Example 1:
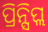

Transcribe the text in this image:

ପ୍ରିନ୍ସିପ୍ଲ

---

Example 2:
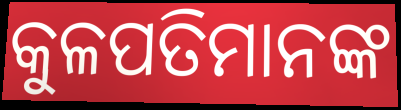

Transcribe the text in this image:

କୁଳପତିମାନଙ୍କ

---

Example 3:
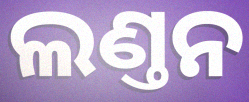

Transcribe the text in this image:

ଲଣ୍ତନ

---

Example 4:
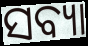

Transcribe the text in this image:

ସବ୍ୟା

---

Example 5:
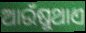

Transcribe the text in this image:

ଆଉଁଷୁଥାଏ